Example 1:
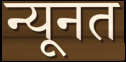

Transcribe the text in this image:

न्यूनत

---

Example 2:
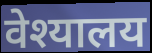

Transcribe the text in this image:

वेश्यालय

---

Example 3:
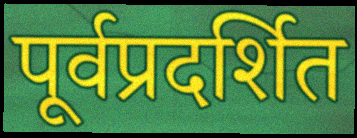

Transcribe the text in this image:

पूर्वप्रदर्शित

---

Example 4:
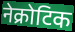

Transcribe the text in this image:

नेक्रोटिक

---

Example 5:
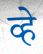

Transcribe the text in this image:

व्हे